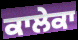
ਕਾਲੇਕਾ